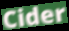
Cider